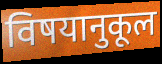
विषयानुकूल